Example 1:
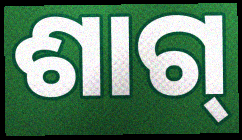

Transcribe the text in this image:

ଶାଗ୍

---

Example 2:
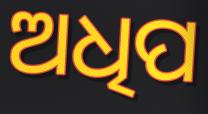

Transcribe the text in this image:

ଅଧିପ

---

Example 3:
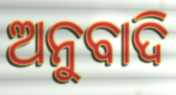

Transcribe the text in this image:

ଅନୁବାଦି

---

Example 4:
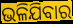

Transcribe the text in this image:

ଭଳିଯିବାର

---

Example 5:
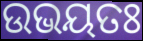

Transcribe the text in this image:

ଉଭୟତଃ